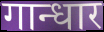
गान्धार